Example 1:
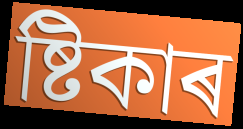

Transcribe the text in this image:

ষ্টিকাৰ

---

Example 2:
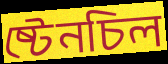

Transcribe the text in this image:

ষ্টেনচিল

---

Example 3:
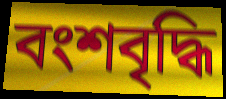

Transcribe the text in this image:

বংশবৃদ্ধি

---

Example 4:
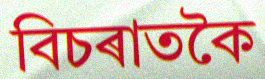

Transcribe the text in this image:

বিচৰাতকৈ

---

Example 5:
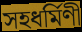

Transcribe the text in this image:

সহধৰ্মিণী